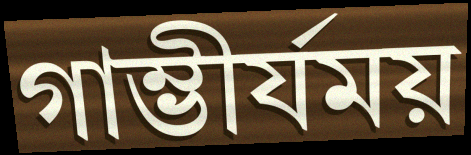
গাম্ভীর্যময়